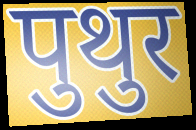
पुथुर